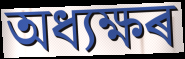
অধ্যক্ষৰ